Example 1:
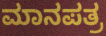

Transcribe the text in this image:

ಮಾನಪತ್ರ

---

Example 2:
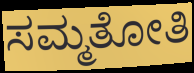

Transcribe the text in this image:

ಸಮ್ಮತೋತಿ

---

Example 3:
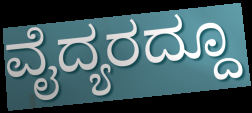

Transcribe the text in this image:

ವೈದ್ಯರದ್ದೂ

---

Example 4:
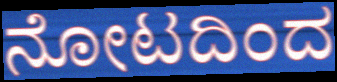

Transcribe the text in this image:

ನೋಟದಿಂದ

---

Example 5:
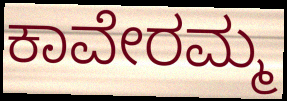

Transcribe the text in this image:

ಕಾವೇರಮ್ಮ